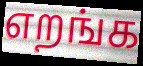
எறங்க